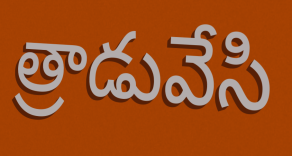
త్రాడువేసి